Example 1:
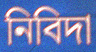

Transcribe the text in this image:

নিবিদা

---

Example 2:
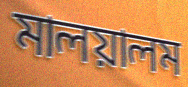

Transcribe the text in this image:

মালয়ালম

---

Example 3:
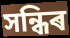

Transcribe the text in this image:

সন্ধিৰ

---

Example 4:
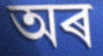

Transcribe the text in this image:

অৰ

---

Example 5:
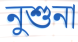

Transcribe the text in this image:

নুশুনা